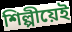
শিল্পীয়েই